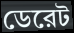
ডেরেট